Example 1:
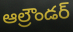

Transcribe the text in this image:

ఆల్రౌండర్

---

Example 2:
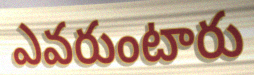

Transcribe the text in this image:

ఎవరుంటారు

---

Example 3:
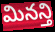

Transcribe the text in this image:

మినన్తి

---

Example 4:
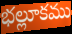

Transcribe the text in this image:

భల్లూకము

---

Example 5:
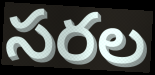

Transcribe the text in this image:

సరల